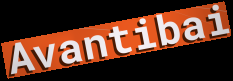
Avantibai